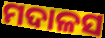
ମଦାଳସ